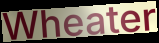
Wheater